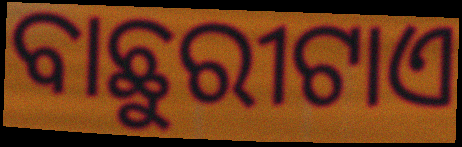
ବାଛୁରୀଟାଏ